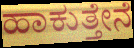
ಹಾಕುತ್ತೇನೆ